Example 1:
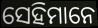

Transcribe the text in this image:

ସେହିମାନେ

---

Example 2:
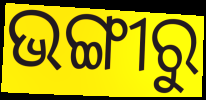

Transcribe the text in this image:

ଭଙ୍ଗୀରୁ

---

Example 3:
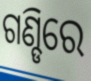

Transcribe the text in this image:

ଗଣ୍ଡିରେ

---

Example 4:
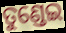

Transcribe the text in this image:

ତୁଣ୍ଡେଇ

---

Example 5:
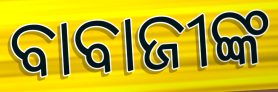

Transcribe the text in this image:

ବାବାଜୀଙ୍କ